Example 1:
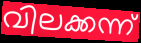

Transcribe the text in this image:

വിലക്കന്ന്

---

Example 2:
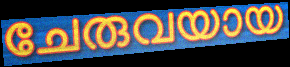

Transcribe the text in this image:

ചേരുവയായ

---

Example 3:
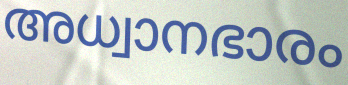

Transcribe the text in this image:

അധ്വാനഭാരം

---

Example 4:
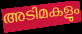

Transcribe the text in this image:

അടിമകളും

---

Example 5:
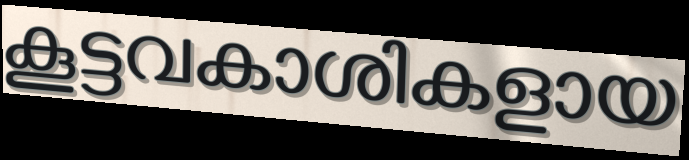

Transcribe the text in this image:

കൂട്ടവകാശികളായ